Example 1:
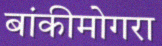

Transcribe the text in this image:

बांकीमोगरा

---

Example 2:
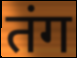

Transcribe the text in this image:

तंग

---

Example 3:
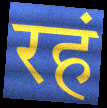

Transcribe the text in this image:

रहं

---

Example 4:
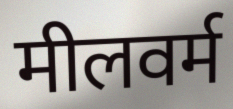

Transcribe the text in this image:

मीलवर्म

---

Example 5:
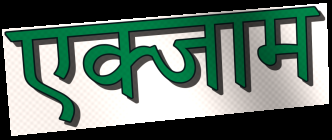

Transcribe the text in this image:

एक्जाम